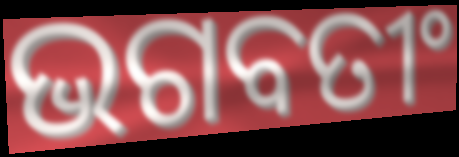
ଭଗବତୀଂ